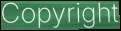
Copyright